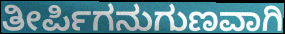
ತೀರ್ಪಿಗನುಗುಣವಾಗಿ